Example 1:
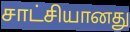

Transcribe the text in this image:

சாட்சியானது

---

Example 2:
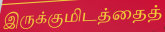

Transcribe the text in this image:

இருக்குமிடத்தைத்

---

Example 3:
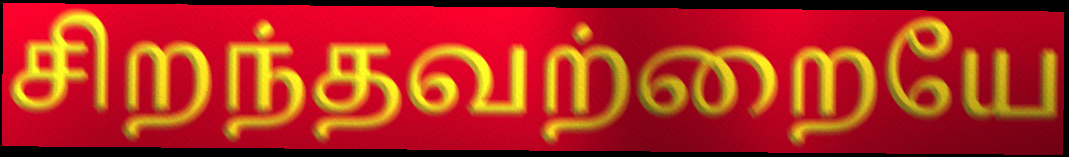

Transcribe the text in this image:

சிறந்தவற்றையே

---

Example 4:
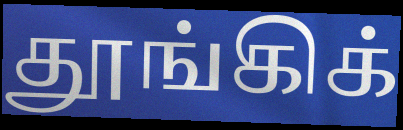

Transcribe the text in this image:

தூங்கிக்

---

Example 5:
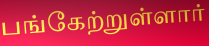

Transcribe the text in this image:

பங்கேற்றுள்ளார்